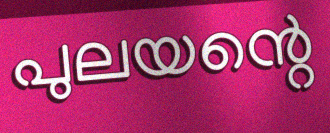
പുലയന്റെ